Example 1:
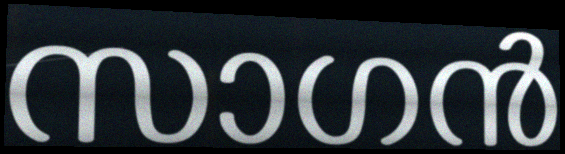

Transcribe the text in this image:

സാഗൻ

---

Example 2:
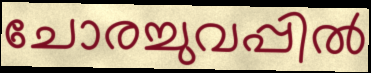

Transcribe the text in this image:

ചോരച്ചുവപ്പിൽ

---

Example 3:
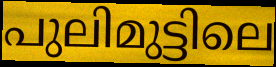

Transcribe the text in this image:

പുലിമുട്ടിലെ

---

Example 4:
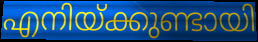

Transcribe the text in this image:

എനിയ്ക്കുണ്ടായി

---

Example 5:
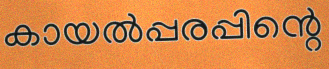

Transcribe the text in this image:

കായൽപ്പരപ്പിന്റെ